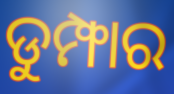
ଡୁମ୍ଫାର